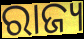
ରାଜ୍ଯ